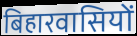
बिहारवासियों